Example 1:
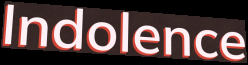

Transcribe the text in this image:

Indolence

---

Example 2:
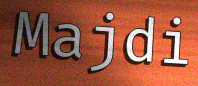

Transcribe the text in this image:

Majdi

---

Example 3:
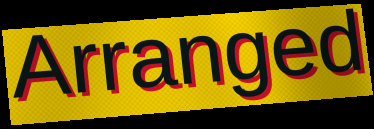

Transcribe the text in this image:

Arranged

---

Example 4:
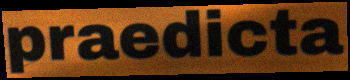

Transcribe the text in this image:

praedicta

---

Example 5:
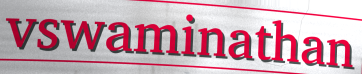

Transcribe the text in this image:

vswaminathan